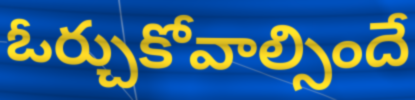
ఓర్చుకోవాల్సిందే